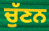
ਚੁੱਣਨ